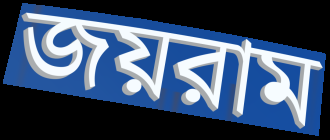
জয়রাম